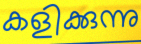
കളിക്കുന്നു